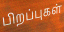
பிறப்புகள்